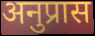
अनुप्रास